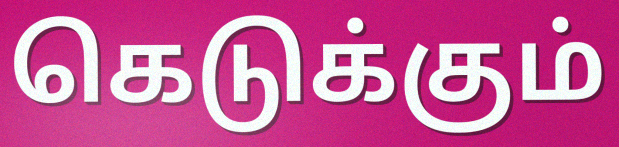
கெடுக்கும்